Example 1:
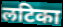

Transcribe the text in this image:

लटिका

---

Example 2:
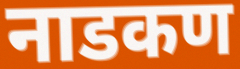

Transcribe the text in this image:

नाडकण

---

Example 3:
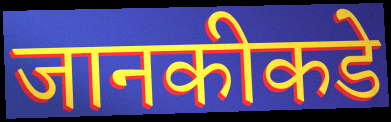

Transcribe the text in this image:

जानकीकडे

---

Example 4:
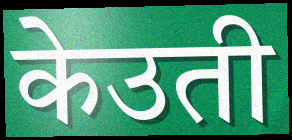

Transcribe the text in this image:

केउती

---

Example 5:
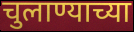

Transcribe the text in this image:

चुलाण्याच्या